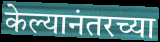
केल्यानंतरच्या